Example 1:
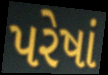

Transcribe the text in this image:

પરેષાં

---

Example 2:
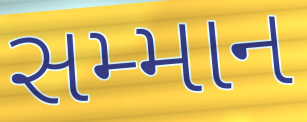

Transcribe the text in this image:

સમ્માન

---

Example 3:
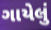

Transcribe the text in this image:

ગાયેલું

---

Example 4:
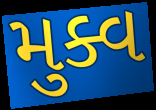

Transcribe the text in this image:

મુક્વ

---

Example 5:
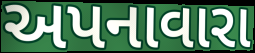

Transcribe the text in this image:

અપનાવારા